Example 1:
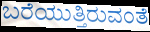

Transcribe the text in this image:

ಬರೆಯುತ್ತಿರುವಂತೆ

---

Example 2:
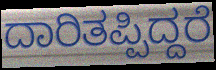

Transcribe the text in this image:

ದಾರಿತಪ್ಪಿದ್ದರೆ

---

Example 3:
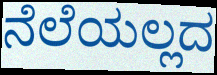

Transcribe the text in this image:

ನೆಲೆಯಲ್ಲದ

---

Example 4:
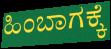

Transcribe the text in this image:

ಹಿಂಬಾಗಕ್ಕೆ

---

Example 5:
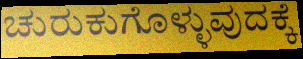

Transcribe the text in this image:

ಚುರುಕುಗೊಳ್ಳುವುದಕ್ಕೆ